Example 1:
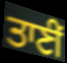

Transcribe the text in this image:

ਤਾਣੀਂ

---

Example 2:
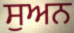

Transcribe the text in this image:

ਸੁਅਨ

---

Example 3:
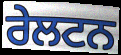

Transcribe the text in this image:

ਰੇਲਟਨ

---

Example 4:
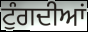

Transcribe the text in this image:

ਟੁੰਗਦੀਆਂ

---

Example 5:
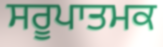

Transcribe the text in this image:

ਸਰੂਪਾਤਮਕ